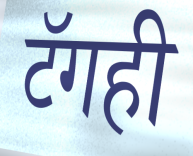
टॅगही